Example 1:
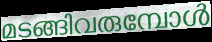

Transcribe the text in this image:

മടങ്ങിവരുമ്പോൾ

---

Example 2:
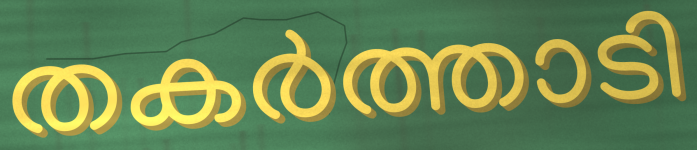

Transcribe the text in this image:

തകർത്താടി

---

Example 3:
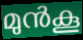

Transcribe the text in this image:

മുൻകൂ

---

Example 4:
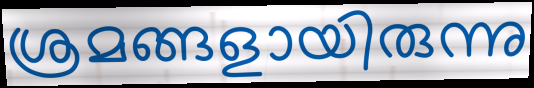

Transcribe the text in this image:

ശ്രമങ്ങളായിരുന്നു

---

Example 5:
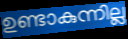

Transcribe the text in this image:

ഉണ്ടാകുന്നില്ല